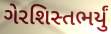
ગેરશિસ્તભર્યું